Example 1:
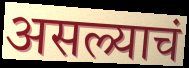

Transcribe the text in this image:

असल्याचं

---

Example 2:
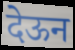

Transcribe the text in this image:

देऊन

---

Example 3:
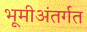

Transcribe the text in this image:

भूमीअंतर्गत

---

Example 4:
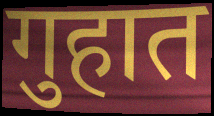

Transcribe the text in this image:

गुहात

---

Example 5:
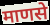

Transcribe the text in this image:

माणसे